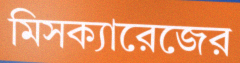
মিসক্যারেজের